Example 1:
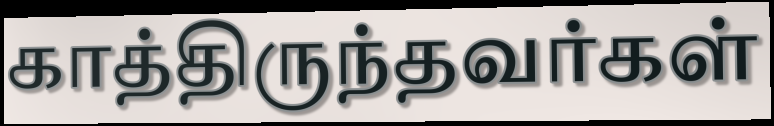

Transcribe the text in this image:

காத்திருந்தவர்கள்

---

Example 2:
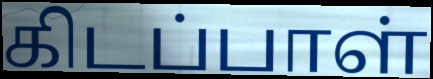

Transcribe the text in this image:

கிடப்பாள்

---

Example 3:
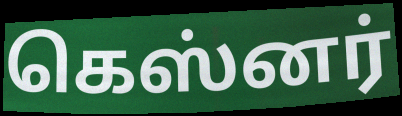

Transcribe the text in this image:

கெஸ்னர்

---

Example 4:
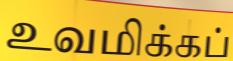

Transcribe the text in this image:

உவமிக்கப்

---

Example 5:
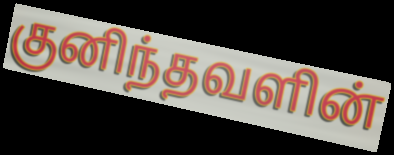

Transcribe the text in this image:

குனிந்தவளின்